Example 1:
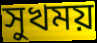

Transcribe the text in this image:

সুখময়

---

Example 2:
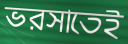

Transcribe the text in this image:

ভরসাতেই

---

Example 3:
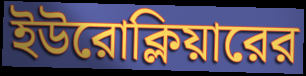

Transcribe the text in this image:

ইউরোক্লিয়ারের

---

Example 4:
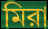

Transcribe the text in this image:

মিরা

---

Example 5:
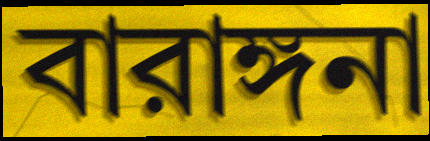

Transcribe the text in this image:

বারাঙ্গনা